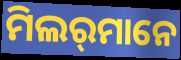
ମିଲର୍‌ମାନେ